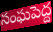
సంఘపెద్ద